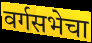
वर्गसभेचा